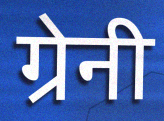
ग्रेनी